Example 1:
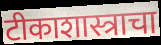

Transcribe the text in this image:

टीकाशास्त्राचा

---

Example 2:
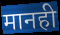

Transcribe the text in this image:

मानही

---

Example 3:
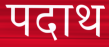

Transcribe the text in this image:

पदाथ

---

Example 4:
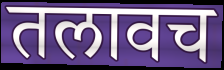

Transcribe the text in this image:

तलावच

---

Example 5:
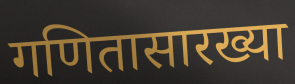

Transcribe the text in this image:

गणितासारख्या